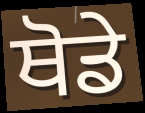
ਥੋਡੇ